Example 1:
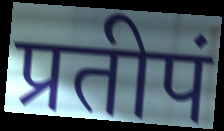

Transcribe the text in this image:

प्रतीपं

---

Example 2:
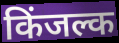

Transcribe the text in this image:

किंजल्क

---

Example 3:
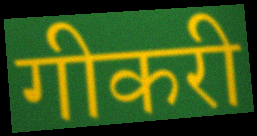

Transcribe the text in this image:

गीकरी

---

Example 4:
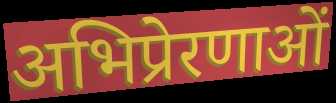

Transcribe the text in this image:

अभिप्रेरणाओं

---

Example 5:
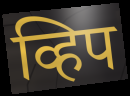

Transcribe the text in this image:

व्हिप